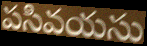
పసివయసు